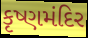
કૃષ્ણમંદિર